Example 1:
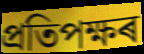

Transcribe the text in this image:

প্ৰতিপক্ষৰ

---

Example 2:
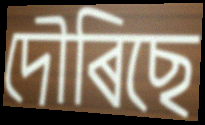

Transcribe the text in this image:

দৌৰিছে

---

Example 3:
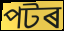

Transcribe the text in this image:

পটৰ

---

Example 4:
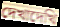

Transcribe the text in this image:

দেখাদেখি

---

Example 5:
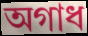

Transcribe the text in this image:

অগাধ